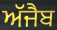
ਅੱਜੈਬ